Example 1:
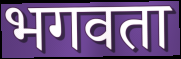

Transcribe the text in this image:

भगवता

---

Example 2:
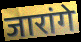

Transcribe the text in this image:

जारांगे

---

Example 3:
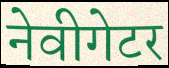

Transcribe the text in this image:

नेवीगेटर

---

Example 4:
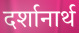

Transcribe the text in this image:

दर्शानार्थ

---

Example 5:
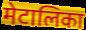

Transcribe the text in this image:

मेटालिका